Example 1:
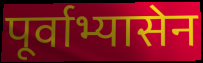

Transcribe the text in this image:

पूर्वाभ्यासेन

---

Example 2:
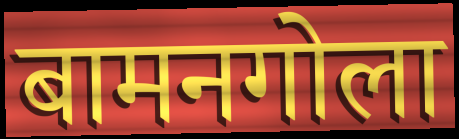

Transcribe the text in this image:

बामनगोला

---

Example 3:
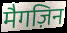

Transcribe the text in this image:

मैगज़िन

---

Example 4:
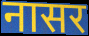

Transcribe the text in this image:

नासर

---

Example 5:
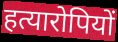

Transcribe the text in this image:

हत्यारोपियों